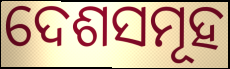
ଦେଶସମୂହ